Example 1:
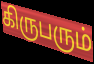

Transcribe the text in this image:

கிருபரும்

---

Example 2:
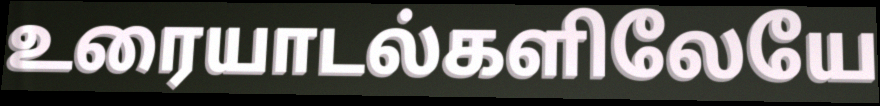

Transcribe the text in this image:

உரையாடல்களிலேயே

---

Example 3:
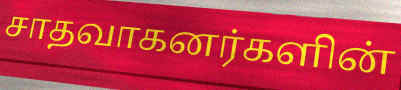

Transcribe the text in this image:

சாதவாகனர்களின்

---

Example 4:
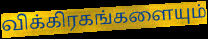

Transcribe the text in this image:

விக்கிரகங்களையும்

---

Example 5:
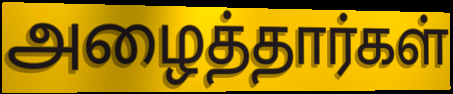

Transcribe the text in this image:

அழைத்தார்கள்